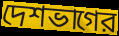
দেশভাগের